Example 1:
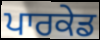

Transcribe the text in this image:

ਪਾਰਕੇਡ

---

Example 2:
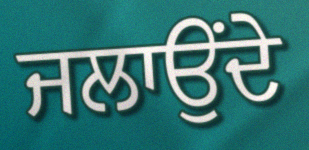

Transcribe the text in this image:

ਜਲਾਉਂਦੇ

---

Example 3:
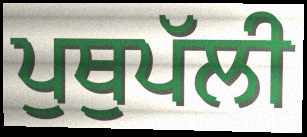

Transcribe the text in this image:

ਪੁਥੁਪੱਲੀ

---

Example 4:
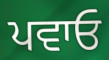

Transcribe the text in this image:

ਪਵਾਓ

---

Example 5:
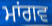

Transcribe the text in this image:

ਮਾਂਗਵ